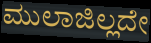
ಮುಲಾಜಿಲ್ಲದೇ